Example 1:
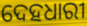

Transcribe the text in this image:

ଦେହଧାରୀ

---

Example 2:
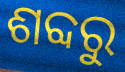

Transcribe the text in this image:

ଶବ୍ଦରୁ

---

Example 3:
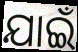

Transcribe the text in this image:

ଯାଇଁ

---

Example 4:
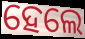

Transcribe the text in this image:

ହେଲେ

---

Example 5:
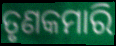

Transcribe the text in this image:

ତୃଣକମାରି